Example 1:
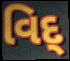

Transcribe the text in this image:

વિદ્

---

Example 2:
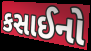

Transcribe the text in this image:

કસાઈનો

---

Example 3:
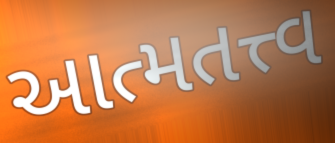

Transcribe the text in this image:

આત્મતત્ત્વ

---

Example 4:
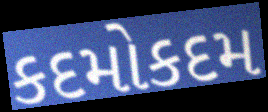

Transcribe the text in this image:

કદમોકદમ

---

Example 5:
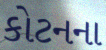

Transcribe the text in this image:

કોટનના